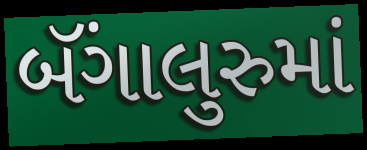
બૅંગાલુરુમાં